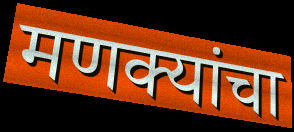
मणक्यांचा